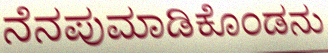
ನೆನಪುಮಾಡಿಕೊಂಡನು